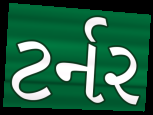
ટર્નર